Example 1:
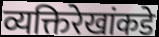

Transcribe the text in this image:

व्यक्तिरेखांकडे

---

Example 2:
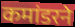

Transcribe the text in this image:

कमांडरने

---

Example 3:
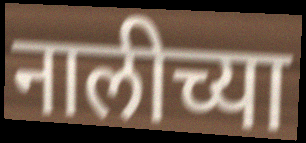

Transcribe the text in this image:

नालीच्या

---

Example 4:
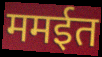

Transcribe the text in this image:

ममईत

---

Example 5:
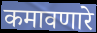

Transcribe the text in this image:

कमावणारे